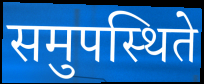
समुपस्थिते